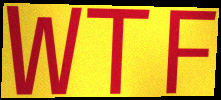
WTF